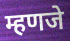
म्हणजे